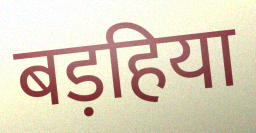
बड़हिया